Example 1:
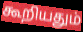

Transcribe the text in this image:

கூறியதும்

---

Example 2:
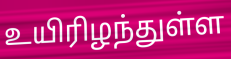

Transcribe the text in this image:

உயிரிழந்துள்ள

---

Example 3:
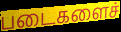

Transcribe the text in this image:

படைகளைச்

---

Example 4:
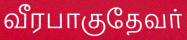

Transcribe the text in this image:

வீரபாகுதேவர்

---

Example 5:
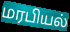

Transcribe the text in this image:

மரபியல்